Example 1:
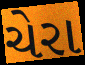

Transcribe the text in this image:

ચેરા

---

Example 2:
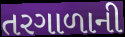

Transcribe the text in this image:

તરગાળાની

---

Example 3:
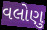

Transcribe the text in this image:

વલોણુ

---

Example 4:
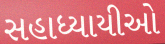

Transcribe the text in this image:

સહાધ્યાયીઓ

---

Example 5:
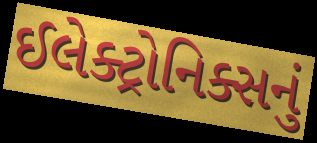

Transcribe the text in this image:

ઈલેક્ટ્રોનિક્સનું